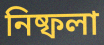
নিষ্ফলা